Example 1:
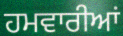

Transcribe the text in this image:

ਹਮਵਾਰੀਆਂ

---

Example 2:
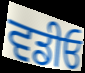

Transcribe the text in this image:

ਵਡੀਓ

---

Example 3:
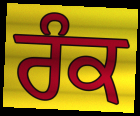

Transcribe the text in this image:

ਰੰਕ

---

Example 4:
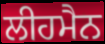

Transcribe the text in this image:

ਲੀਹਮੈਨ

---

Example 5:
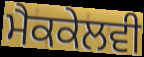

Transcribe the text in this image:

ਮੈਕਕੇਲਵੀ